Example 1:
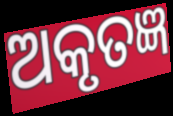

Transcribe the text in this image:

ଅକୃତଜ୍ଞ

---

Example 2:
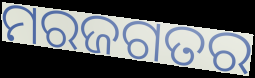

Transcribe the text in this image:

ମରଜଗତର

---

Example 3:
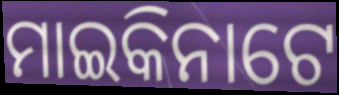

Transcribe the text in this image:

ମାଇକିନାଟେ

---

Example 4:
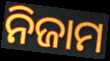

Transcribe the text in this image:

ନିଜାମ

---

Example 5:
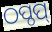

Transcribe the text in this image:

ଠପ୍ଠପ୍